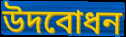
উদবোধন